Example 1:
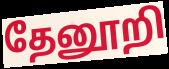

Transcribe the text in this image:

தேனூறி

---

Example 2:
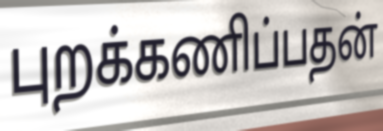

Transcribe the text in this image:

புறக்கணிப்பதன்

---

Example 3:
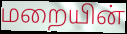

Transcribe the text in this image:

மறையின்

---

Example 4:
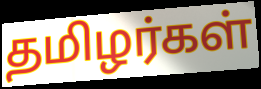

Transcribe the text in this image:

தமிழர்கள்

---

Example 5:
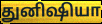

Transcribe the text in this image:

துனிஷியா